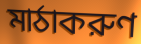
মাঠাকরুণ